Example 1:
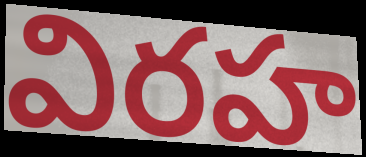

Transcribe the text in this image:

విరహ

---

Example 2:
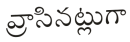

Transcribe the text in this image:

వ్రాసినట్లుగా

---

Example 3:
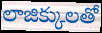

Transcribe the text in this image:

లాజిక్కులతో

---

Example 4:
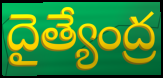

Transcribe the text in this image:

దైత్యేంద్ర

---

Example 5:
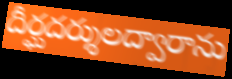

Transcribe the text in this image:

దీర్ఘదర్శులద్వారాను